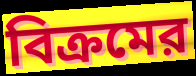
বিক্রমের